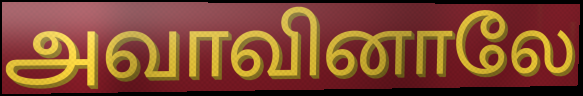
அவாவினாலே